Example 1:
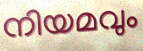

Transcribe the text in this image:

നിയമവും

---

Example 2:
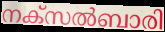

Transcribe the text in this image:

നക്സൽബാരി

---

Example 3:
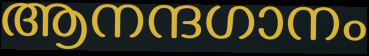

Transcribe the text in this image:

ആനന്ദഗാനം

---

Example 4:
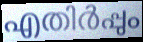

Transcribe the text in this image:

എതിർപ്പും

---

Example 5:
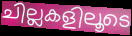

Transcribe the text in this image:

ചില്ലകളിലൂടെ